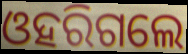
ଓହରିଗଲେ